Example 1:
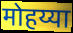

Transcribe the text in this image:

मोहय्या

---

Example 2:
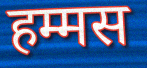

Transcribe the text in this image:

हम्मस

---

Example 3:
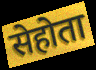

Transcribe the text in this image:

सेहोता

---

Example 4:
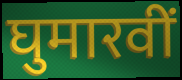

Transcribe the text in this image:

घुमारवीं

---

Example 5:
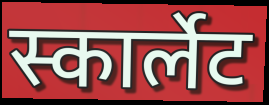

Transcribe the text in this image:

स्कार्लेट